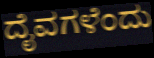
ದೈವಗಳೆಂದು